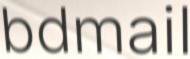
bdmail